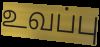
உவப்பு